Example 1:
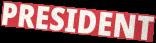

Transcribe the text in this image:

PRESIDENT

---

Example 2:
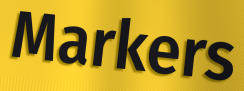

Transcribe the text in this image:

Markers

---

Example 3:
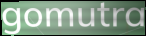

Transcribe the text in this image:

gomutra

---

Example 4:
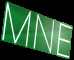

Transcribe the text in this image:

MNE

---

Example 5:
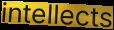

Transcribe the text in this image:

intellects